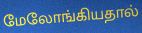
மேலோங்கியதால்